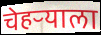
चेहऱ्याला